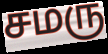
சமரு